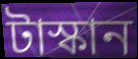
টাস্কান